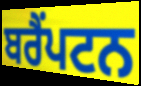
ਬਰੈਂਪਟਨ